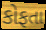
કોફતા